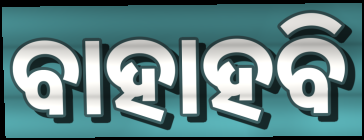
ବାହାହବି